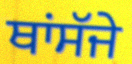
ਥਾਂਸੱਜੇ